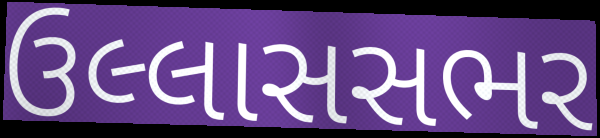
ઉલ્લાસસભર